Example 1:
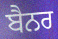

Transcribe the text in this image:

ਬੈਨਰ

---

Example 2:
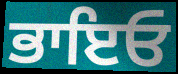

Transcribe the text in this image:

ਭਾਇਓ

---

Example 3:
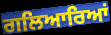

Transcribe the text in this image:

ਗਲਿਆਰਿਆਂ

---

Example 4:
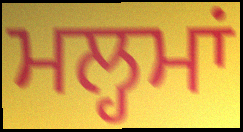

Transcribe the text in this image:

ਮਲ੍ਹਮਾਂ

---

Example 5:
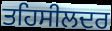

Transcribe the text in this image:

ਤਹਿਸੀਲਦਰ